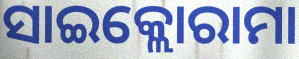
ସାଇକ୍ଲୋରାମା